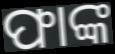
ଫାଙ୍କ